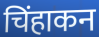
चिंहाकन